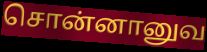
சொன்னானுவ